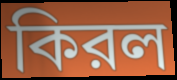
কিরল